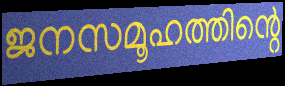
ജനസമൂഹത്തിന്റെ